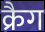
क्रैग